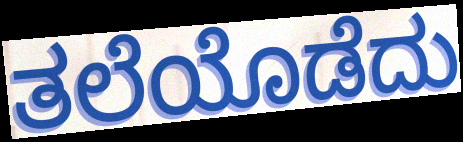
ತಲೆಯೊಡೆದು